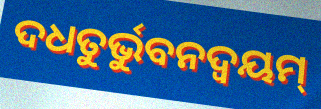
ଦଧତୁର୍ଭୁବନଦ୍ଵୟମ୍